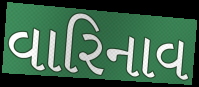
વારિનાવ